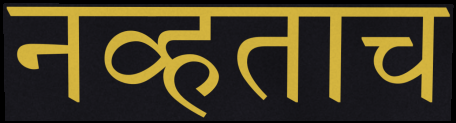
नव्हताच